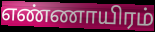
எண்ணாயிரம்